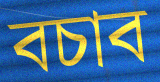
বচাব